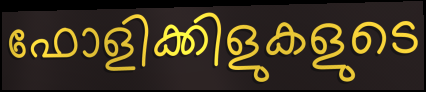
ഫോളിക്കിളുകളുടെ